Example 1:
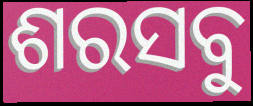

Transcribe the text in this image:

ଶରସବୁ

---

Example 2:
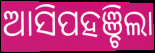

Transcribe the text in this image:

ଆସିପହଞ୍ଚିଲା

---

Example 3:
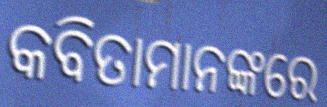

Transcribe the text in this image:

କବିତାମାନଙ୍କରେ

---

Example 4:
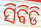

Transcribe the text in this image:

ସିବିଡି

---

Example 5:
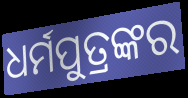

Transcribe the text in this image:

ଧର୍ମପୁତ୍ରଙ୍କର